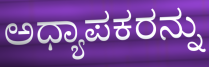
ಅಧ್ಯಾಪಕರನ್ನು